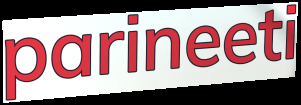
parineeti